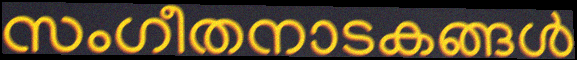
സംഗീതനാടകങ്ങൾ